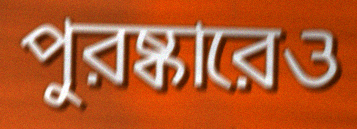
পুরষ্কারেও